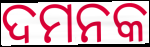
ଦମନକ